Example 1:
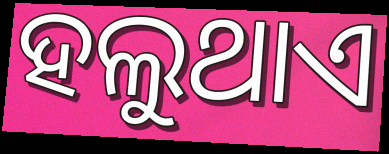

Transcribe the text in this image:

ହଲୁଥାଏ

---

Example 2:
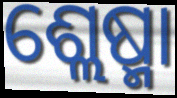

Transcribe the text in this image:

ଶ୍ଲେଷ୍ମା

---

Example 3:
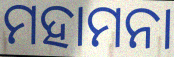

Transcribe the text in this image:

ମହାମନା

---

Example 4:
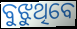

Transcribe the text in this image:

ବୁଝୁଥିବେ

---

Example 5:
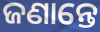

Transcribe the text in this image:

ଜଣାନ୍ତେ